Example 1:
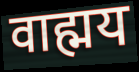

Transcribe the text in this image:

वाह्मय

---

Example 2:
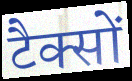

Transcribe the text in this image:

टैक्सों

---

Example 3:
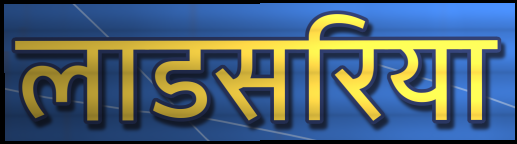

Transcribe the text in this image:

लाडसरिया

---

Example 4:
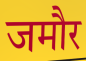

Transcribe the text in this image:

जमौर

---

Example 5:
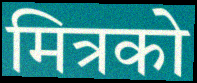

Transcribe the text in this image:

मित्रको